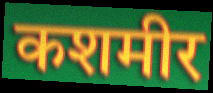
कशमीर